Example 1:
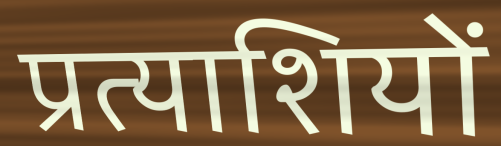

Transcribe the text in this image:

प्रत्‍याशियों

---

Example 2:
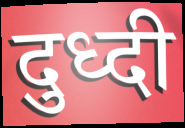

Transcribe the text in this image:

दुध्दी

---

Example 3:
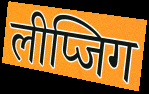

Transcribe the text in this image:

लीप्जिग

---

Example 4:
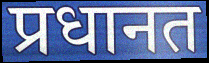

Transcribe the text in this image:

प्रधानत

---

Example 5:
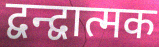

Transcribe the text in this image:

द्वन्द्वात्मक